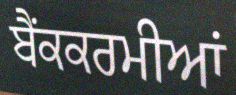
ਬੈਂਕਕਰਮੀਆਂ